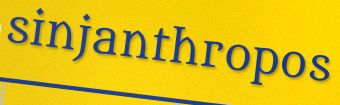
sinjanthropos